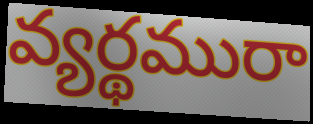
వ్యర్థమురా